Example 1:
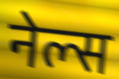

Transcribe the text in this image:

नेल्स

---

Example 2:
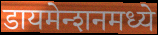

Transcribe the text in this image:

डायमेन्शनमध्ये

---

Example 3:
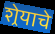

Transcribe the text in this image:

श्रेयाचे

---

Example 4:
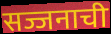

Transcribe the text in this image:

सज्जनाची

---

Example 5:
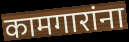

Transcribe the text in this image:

कामगारांना